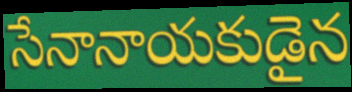
సేనానాయకుడైన